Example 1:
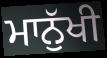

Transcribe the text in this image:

ਮਾਨੁੱਖੀ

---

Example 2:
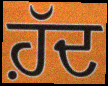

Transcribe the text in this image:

ਹ਼ੱਦ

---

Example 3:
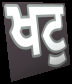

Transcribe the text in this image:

ਖਟੁ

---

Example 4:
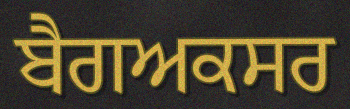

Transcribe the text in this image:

ਬੈਗਅਕਸਰ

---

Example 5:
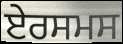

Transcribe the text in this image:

ਏਰਸਮਸ